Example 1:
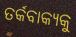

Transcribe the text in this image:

ତର୍କବାକ୍ୟକୁ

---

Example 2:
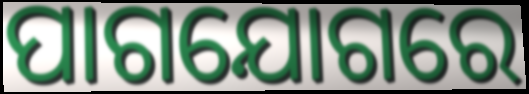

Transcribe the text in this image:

ପାଗଯୋଗରେ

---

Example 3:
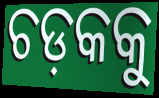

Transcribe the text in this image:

ଚଡ଼କକୁ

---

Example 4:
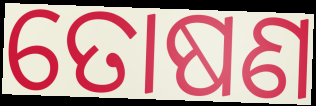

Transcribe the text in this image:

ତୋଷଣ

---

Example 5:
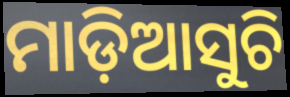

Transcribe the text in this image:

ମାଡ଼ିଆସୁଚି